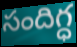
సందిగ్ధ